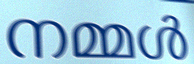
നമ്മൾ